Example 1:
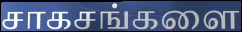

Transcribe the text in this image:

சாகசங்களை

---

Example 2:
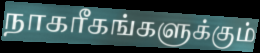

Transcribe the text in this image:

நாகரீகங்களுக்கும்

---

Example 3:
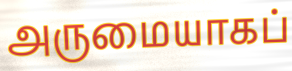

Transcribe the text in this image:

அருமையாகப்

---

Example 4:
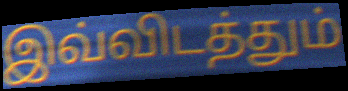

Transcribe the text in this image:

இவ்விடத்தும்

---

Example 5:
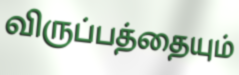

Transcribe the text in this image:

விருப்பத்தையும்